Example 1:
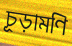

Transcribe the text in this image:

চূড়ামণি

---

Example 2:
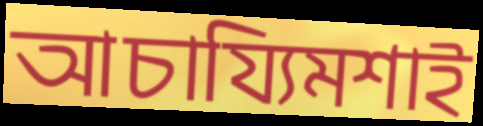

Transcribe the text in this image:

আচায্যিমশাই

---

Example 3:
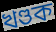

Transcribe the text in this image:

খণ্ডক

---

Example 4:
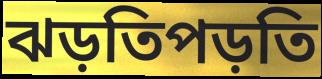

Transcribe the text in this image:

ঝড়তিপড়তি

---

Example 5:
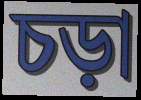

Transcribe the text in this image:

চড়া